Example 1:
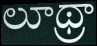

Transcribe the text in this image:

లూథ్రా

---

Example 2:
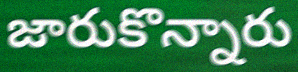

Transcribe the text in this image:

జారుకొన్నారు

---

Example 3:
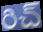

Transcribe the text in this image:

రిచ్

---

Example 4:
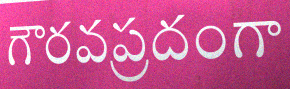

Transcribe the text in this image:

గౌరవప్రదంగా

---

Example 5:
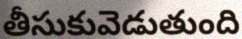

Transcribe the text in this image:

తీసుకువెడుతుంది